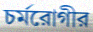
চর্মরোগীর